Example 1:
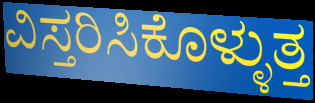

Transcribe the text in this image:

ವಿಸ್ತರಿಸಿಕೊಳ್ಳುತ್ತ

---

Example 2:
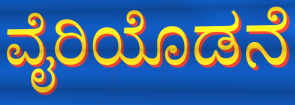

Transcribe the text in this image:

ವೈರಿಯೊಡನೆ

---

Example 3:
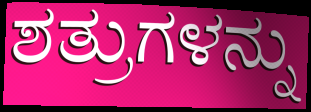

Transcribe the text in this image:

ಶತ್ರುಗಳನ್ನು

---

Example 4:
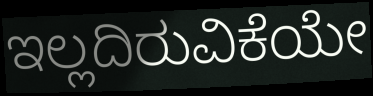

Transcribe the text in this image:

ಇಲ್ಲದಿರುವಿಕೆಯೇ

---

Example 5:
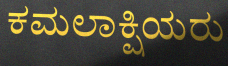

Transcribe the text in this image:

ಕಮಲಾಕ್ಷಿಯರು